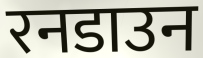
रनडाउन